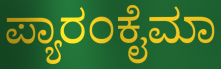
ಪ್ಯಾರಂಕೈಮಾ